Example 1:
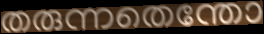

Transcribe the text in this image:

തരുന്നതെന്തോ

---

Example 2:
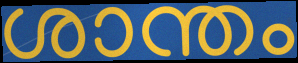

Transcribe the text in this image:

ശാന്തം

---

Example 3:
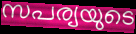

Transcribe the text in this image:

സപര്യയുടെ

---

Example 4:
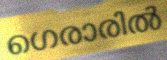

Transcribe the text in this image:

ഗെരാരിൽ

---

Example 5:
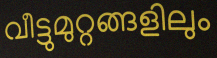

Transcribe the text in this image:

വീട്ടുമുറ്റങ്ങളിലും